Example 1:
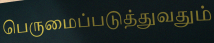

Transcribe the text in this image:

பெருமைப்படுத்துவதும்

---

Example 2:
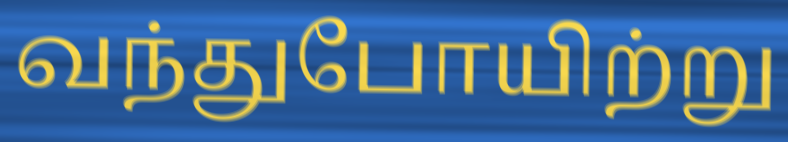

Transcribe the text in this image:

வந்துபோயிற்று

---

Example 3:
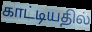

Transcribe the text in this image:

காட்டியதில்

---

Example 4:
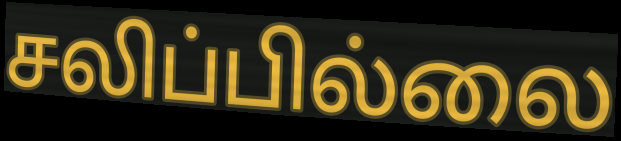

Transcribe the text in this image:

சலிப்பில்லை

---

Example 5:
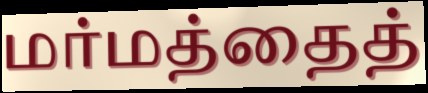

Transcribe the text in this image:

மர்மத்தைத்